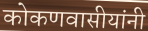
कोकणवासीयांनी